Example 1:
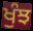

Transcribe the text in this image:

ਖੁੰਝ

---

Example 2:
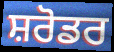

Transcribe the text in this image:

ਸ਼ਰੋਡਰ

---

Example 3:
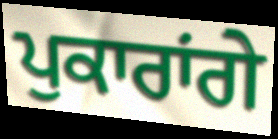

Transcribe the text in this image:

ਪੁਕਾਰਾਂਗੇ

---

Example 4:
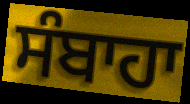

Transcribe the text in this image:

ਸੰਬਾਹਾ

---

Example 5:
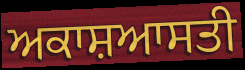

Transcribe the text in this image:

ਅਕਾਸ਼ਆਸਤੀ